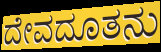
ದೇವದೂತನು